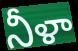
నీళా